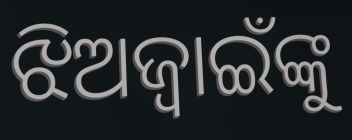
ଝିଅଜ୍ୱାଇଁଙ୍କୁ